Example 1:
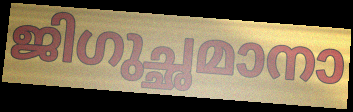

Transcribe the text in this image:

ജിഗുച്ഛമാനാ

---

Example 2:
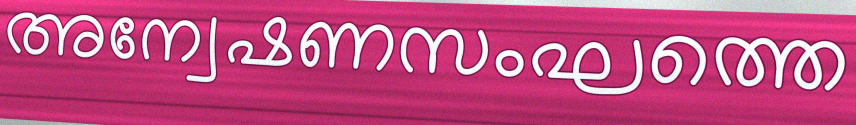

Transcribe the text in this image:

അന്വേഷണസംഘത്തെ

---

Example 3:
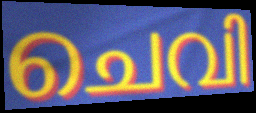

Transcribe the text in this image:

ചെവി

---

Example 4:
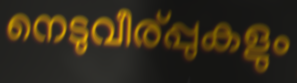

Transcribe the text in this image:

നെടുവീര്പ്പുകളും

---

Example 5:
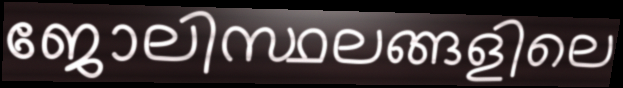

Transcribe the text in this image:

ജോലിസ്ഥലങ്ങളിലെ